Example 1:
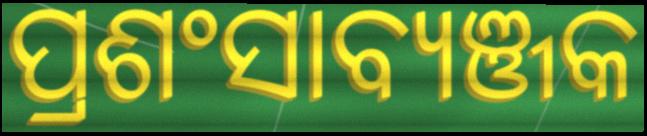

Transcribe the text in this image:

ପ୍ରଶଂସାବ୍ୟଞ୍ଜକ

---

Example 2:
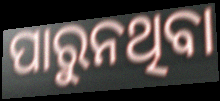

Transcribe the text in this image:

ପାରୁନଥିବା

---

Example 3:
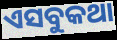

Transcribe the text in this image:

ଏସବୁକଥା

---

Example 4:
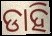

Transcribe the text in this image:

ଡାହି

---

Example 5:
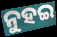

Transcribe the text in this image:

ନୁହଇ